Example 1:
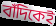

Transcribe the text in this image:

বাঁদিকেই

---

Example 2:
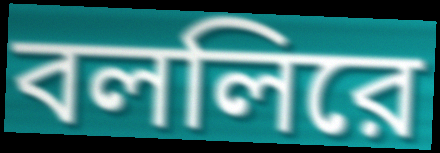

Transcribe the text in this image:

বললিরে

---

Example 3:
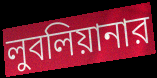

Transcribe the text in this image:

লুবলিয়ানার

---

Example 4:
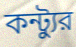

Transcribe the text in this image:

কন্ট্যুর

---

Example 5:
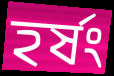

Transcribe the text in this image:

হর্ষং